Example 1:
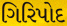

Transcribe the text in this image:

ગિરિપોદ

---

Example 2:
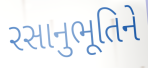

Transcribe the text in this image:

રસાનુભૂતિને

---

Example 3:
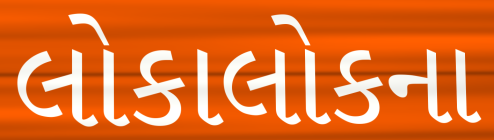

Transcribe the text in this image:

લોકાલોકના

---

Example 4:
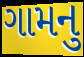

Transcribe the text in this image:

ગામનુ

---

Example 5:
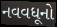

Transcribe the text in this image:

નવવધૂનો